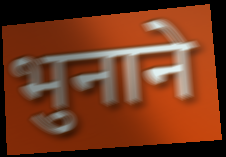
भुनाने